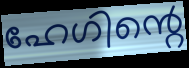
ഹേഗിന്റെ